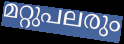
മറ്റുപലരും